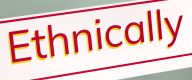
Ethnically